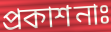
প্রকাশনাঃ